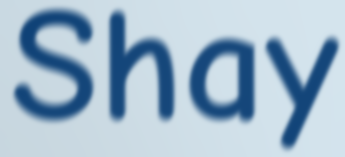
Shay